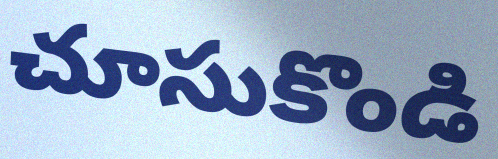
చూసుకొండి